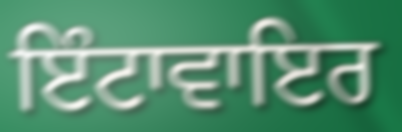
ਇੰਟਾਵਾਇਰ